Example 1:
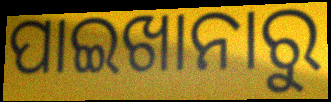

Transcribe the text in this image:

ପାଇଖାନାରୁ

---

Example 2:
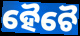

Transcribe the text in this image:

ହୈଚୈ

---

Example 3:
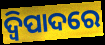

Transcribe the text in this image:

ଦ୍ୱିପାଦରେ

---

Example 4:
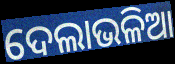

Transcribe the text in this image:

ଦେଲାଭଳିଆ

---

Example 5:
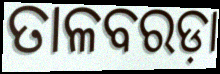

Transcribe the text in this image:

ତାଳବରଡ଼ା